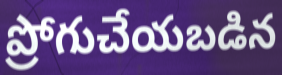
ప్రోగుచేయబడిన